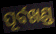
ପୂର୍ବଖଣ୍ଡ